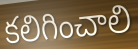
కలిగించాలి